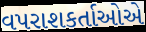
વપરાશકર્તાઓએ